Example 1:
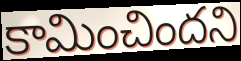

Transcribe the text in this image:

కామించిందని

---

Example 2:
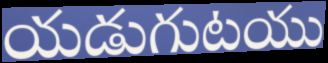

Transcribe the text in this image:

యడుగుటయు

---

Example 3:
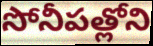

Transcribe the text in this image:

సోనీపత్లోని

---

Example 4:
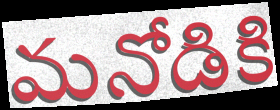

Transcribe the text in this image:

మనోడికి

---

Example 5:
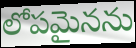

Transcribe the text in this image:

లోపమైనను